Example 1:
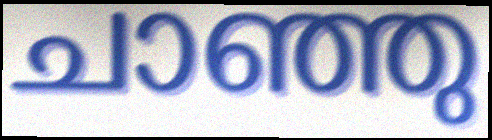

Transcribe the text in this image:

ചാഞ്ഞു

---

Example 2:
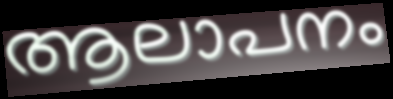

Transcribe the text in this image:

ആലാപനം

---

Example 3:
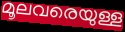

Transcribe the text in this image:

മൂലവരെയുള്ള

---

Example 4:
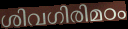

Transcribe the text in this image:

ശിവഗിരിമഠം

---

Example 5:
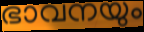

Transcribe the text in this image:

ഭാവനയും